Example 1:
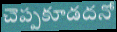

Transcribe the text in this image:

చెప్పకూడదనో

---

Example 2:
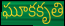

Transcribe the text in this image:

ఘూకకృతి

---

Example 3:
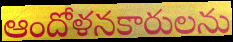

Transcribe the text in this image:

ఆందోళనకారులను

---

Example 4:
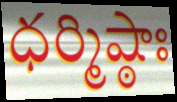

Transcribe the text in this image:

ధర్మిష్ఠాః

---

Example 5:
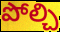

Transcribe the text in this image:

పోల్చి